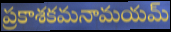
ప్రకాశకమనామయమ్